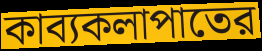
কাব্যকলাপাতের